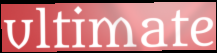
ultimate